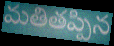
మతితప్పిన